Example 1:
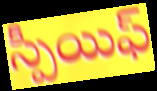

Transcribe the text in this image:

స్పీయిఫ్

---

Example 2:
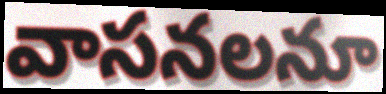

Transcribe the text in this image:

వాసనలనూ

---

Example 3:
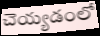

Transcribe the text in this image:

చెయ్యడంలో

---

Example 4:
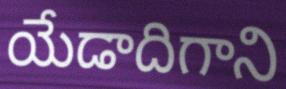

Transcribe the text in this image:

యేడాదిగాని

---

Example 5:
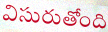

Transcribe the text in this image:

విసురుతోంది